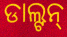
ଡାଲ୍ଟନ୍